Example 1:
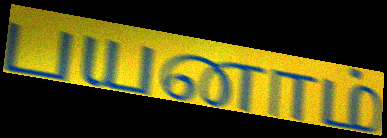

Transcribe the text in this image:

பயனாம்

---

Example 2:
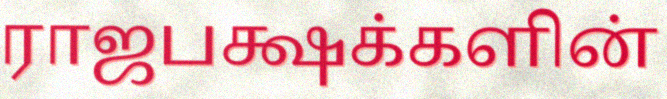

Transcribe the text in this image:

ராஜபக்ஷக்களின்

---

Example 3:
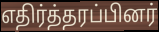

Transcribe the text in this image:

எதிர்த்தரப்பினர்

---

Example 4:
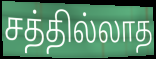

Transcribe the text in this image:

சத்தில்லாத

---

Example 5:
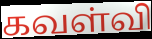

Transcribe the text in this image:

கவள்வி